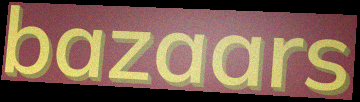
bazaars